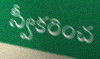
స్వీకరించ